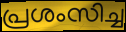
പ്രശംസിച്ച